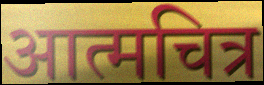
आत्मचित्र